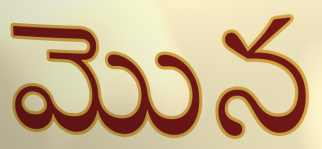
మొన